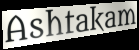
Ashtakam